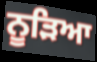
ਨੂੜਿਆ